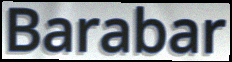
Barabar